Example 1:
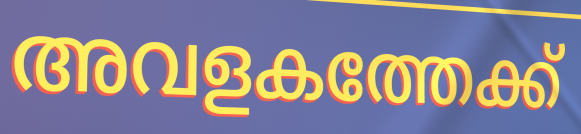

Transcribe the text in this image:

അവളകത്തേക്ക്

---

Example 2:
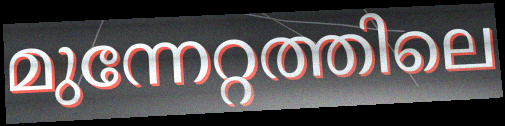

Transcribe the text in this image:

മുന്നേറ്റത്തിലെ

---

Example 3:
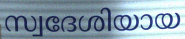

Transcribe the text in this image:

സ്വദേശിയായ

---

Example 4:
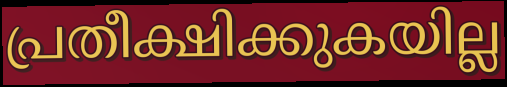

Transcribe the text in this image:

പ്രതീക്ഷിക്കുകയില്ല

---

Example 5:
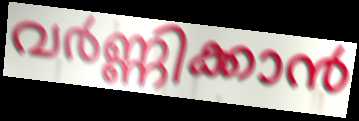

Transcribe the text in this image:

വർണ്ണിക്കാൻ